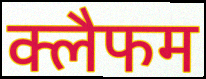
क्लैफम